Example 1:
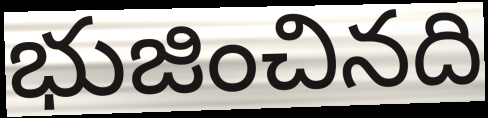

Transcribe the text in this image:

భుజించినది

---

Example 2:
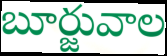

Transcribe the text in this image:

బూర్జువాల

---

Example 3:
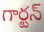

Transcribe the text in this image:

గార్టన్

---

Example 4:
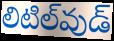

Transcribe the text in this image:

లిటిల్‌వుడ్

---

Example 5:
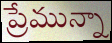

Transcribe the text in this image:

ప్రేమున్నా